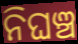
ନିଘଞ୍ଚ